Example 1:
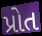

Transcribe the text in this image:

પ્રોત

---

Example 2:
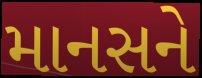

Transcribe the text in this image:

માનસને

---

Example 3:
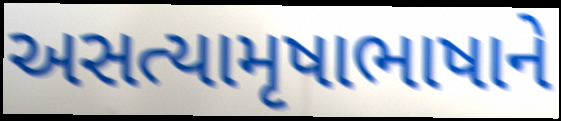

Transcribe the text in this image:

અસત્યામૃષાભાષાને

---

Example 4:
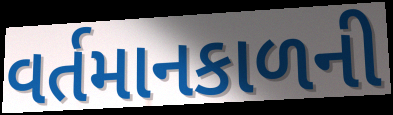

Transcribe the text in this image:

વર્તમાનકાળની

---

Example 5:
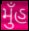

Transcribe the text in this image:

મુઁહ